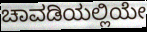
ಚಾವಡಿಯಲ್ಲಿಯೇ